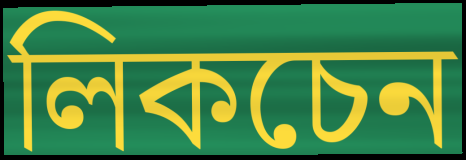
লিকচেন